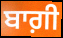
ਬਾਗ਼ੀ